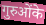
गुरुओंके